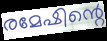
രമേഷിന്റെ